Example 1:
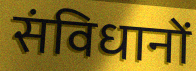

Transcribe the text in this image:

संविधानों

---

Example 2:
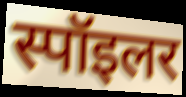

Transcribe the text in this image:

स्पॉइलर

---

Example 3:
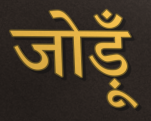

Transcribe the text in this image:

जोड़ूँ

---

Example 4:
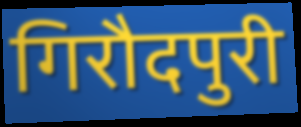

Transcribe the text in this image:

गिरौदपुरी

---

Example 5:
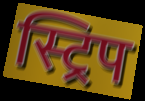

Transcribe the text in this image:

स्ट्रिप